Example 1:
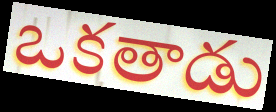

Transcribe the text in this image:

ఒకతాడు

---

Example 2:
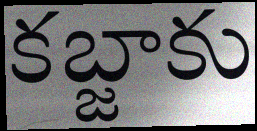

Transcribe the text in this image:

కబ్జాకు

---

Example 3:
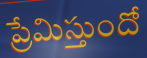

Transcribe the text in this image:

ప్రేమిస్తుందో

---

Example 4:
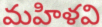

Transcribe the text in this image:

మహిళవి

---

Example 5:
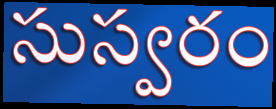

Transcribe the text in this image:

సుస్వరం